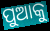
ପୁଆକୁ